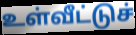
உள்வீட்டுச்